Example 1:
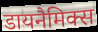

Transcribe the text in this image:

डायनैमिक्स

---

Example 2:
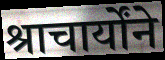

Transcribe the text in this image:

श्राचार्योंने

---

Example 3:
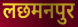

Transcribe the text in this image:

लछमनपुर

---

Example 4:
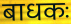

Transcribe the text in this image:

बाधकः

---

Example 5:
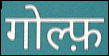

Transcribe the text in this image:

गोल्फ़